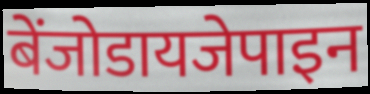
बेंजोडायजेपाइन